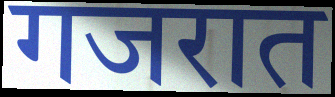
गजरात